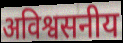
अविश्वसनीय